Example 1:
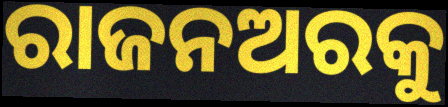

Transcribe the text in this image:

ରାଜନଅରକୁ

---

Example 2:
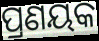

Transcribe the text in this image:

ପ୍ରଣୟକ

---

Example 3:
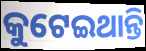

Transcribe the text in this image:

କୁଟେଇଥାନ୍ତି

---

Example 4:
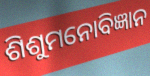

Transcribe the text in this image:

ଶିଶୁମନୋବିଜ୍ଞାନ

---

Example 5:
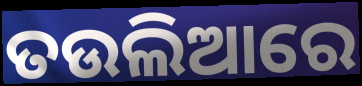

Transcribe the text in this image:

ତଉଲିଆରେ